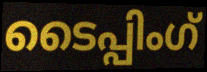
ടൈപ്പിംഗ്